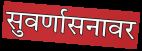
सुवर्णासनावर